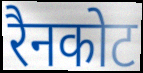
रैनकोट